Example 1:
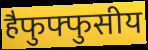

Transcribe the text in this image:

हैफुफ्फुसीय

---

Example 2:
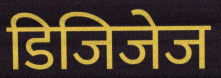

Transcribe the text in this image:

डिजिजेज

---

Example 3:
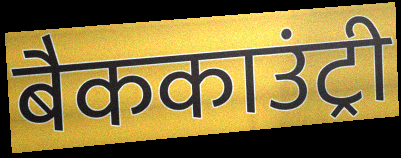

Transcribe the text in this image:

बैककाउंट्री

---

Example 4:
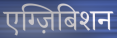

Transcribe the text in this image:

एग्ज़िबिशन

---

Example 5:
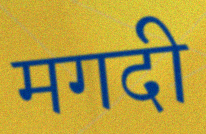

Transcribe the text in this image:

मगदी